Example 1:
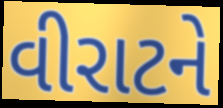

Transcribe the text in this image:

વીરાટને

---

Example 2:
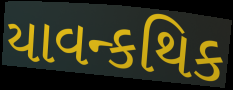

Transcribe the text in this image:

યાવન્કથિક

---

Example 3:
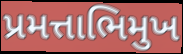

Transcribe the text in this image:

પ્રમત્તાભિમુખ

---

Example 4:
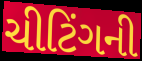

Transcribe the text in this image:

ચીટિંગની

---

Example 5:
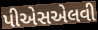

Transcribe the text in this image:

પીએસએલવી